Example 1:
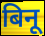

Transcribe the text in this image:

बिनू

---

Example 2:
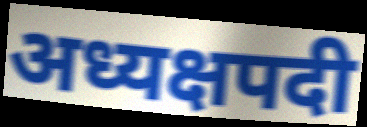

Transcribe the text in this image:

अध्यक्षपदी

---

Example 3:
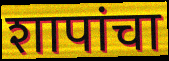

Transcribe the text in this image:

शापांचा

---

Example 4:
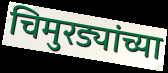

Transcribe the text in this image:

चिमुरड्यांच्या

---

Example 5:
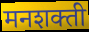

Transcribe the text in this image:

मनशक्ती